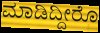
ಮಾಡಿದ್ದೀರೊ